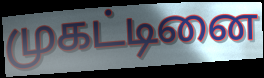
முகட்டினை